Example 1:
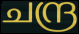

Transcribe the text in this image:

ചന്ദ്ര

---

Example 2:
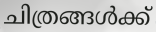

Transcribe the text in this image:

ചിത്രങ്ങൾക്ക്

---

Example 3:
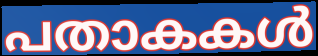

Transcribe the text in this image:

പതാകകൾ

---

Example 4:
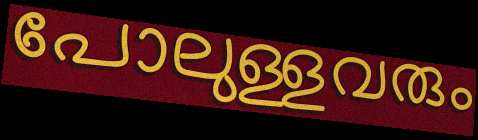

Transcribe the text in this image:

പോലുള്ളവരും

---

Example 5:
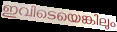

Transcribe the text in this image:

ഇവിടെയെങ്കിലും